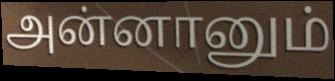
அன்னானும்